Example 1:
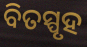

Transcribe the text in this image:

ବିତସ୍ପୃହ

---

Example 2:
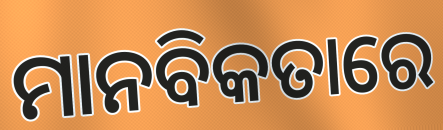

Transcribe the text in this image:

ମାନବିକତାରେ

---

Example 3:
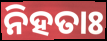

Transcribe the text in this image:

ନିହତାଃ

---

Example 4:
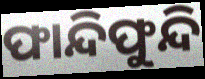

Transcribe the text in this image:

ଫାନ୍ଦିଫୁନ୍ଦି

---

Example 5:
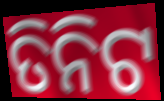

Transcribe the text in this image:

ତିନିଟ